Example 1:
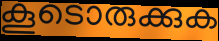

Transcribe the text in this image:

കൂടൊരുക്കുക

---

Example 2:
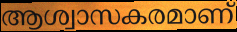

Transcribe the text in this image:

ആശ്വാസകരമാണ്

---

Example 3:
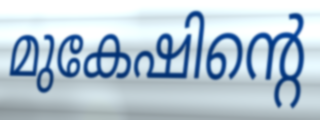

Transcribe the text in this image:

മുകേഷിന്റെ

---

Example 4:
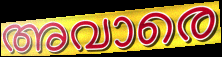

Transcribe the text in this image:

അവാരെ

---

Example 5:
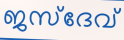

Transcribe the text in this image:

ജസ്ദേവ്